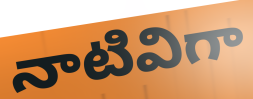
నాటివిగా